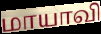
மாயாவி